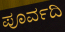
ಪೂರ್ವದಿ